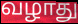
வழாது